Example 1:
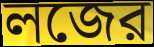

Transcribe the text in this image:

লজের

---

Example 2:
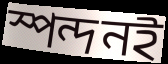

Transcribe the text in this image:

স্পন্দনই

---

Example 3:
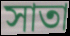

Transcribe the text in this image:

সাতা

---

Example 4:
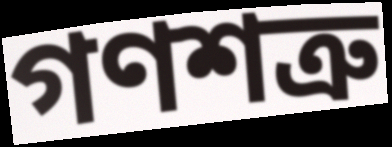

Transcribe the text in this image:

গণশত্রু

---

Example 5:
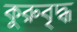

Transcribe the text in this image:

কুরুবৃদ্ধ